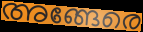
അങ്ങേരെ